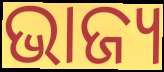
ଭାଜ୍ୟ